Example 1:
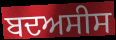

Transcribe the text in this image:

ਬਦਅਸੀਸ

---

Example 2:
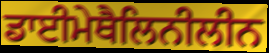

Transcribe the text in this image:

ਡਾਈਮੇਥੈਲਿਨੀਲੀਨ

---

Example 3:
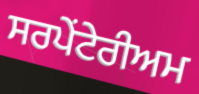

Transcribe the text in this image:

ਸਰਪੇਂਟੇਰੀਅਮ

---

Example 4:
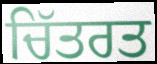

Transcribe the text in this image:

ਚਿੱਤਰਤ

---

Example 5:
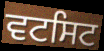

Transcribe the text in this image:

ਵਟਸਿਟ